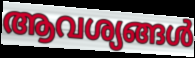
ആവശ്യങ്ങൾ